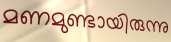
മണമുണ്ടായിരുന്നു